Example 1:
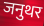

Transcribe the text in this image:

जनुथर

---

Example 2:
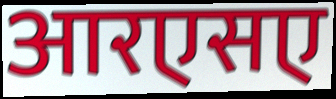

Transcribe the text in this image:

आरएसए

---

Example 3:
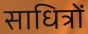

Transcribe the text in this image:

साधित्रों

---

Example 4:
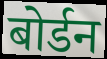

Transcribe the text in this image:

बोर्डन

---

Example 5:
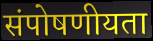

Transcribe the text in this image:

संपोषणीयता